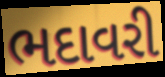
ભદાવરી